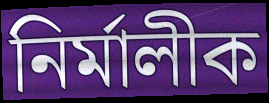
নিৰ্মালীক